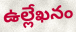
ఉల్లేఖనం